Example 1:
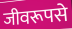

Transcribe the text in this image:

जीवरूपसे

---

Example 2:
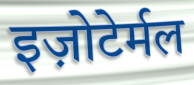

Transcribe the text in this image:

इज़ोटेर्मल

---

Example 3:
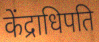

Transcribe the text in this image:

केंद्राधिपति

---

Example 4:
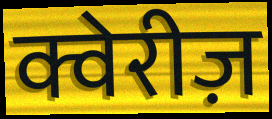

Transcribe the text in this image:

क्वेरीज़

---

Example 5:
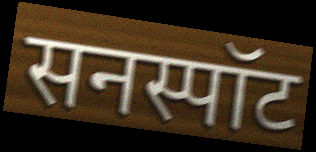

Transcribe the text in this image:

सनस्पॉट